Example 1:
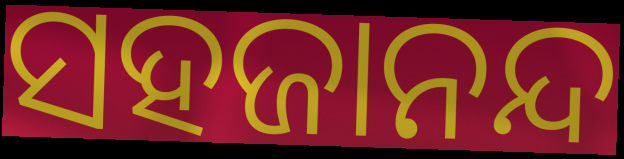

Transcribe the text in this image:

ସହଜାନନ୍ଦ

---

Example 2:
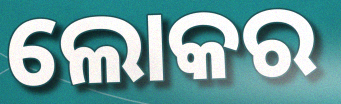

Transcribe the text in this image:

ଲୋକର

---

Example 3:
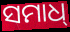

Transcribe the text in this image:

ସମାଧ୍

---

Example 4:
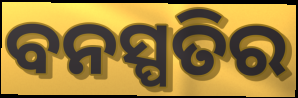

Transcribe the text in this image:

ବନସ୍ପତିର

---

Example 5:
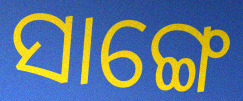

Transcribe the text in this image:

ସାଙ୍ଗେ